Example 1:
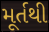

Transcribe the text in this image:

મૂર્તથી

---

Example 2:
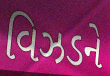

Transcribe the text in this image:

વિઝડને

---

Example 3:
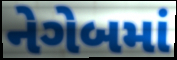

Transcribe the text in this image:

નેગેબમાં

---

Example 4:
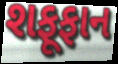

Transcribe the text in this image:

શફૂફાન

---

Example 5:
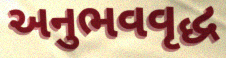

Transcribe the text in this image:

અનુભવવૃદ્ધ